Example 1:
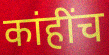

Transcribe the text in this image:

कांहींच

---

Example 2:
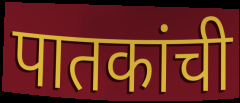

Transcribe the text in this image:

पातकांची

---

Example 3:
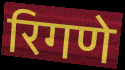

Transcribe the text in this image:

रिगणे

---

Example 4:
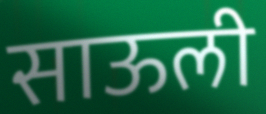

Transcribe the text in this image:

साऊली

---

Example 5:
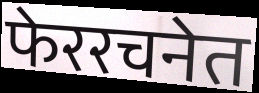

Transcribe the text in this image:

फेररचनेत